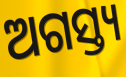
ଅଗସ୍ତ୍ୟ